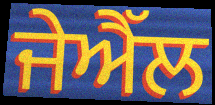
ਜੇਐੱਲ